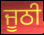
ਜੂਠੀ